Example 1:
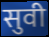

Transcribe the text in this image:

सुवी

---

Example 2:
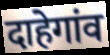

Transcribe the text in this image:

दाहेगांव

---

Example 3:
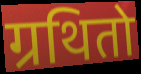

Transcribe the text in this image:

ग्रथितो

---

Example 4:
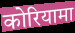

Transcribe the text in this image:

कोरियामा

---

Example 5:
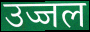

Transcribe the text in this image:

उज्जल